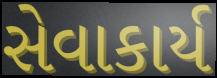
સેવાકાર્ય